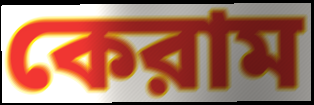
কেরাম